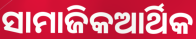
ସାମାଜିକଆର୍ଥିକ